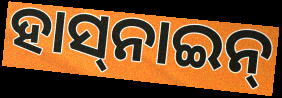
ହାସ୍‌ନାଇନ୍